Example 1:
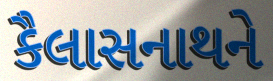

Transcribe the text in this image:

કૈલાસનાથને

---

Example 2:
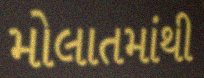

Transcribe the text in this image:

મોલાતમાંથી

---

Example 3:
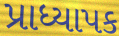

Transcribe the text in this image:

પ્રાધ્યાપક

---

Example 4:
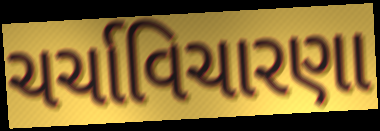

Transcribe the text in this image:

ચર્ચાવિચારણા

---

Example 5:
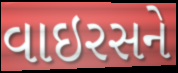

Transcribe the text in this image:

વાઇરસને